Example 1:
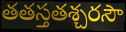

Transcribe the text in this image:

తతస్తతశ్చరసౌ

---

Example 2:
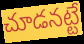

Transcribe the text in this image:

చూడనట్టే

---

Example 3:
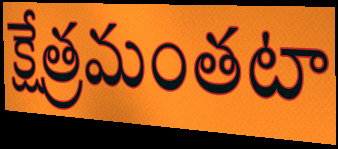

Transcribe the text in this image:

క్షేత్రమంతటా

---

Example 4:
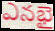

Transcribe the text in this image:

ఎనభై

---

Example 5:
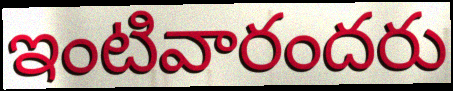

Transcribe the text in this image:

ఇంటివారందరు